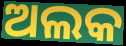
ଅଲକ